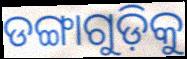
ଡଙ୍ଗାଗୁଡ଼ିକୁ